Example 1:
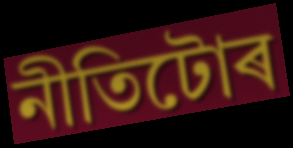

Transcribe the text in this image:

নীতিটোৰ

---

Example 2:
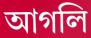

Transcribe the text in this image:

আগলি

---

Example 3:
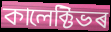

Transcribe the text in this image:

কালেক্টিভৰ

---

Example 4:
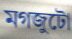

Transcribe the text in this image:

মগজুটো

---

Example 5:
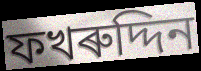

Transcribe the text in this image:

ফখৰুদ্দিন